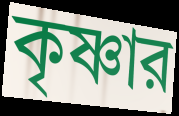
কৃষ্ণার